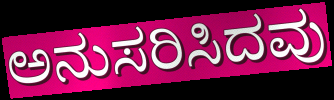
ಅನುಸರಿಸಿದವು